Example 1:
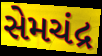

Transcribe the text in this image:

સેમચંદ્ર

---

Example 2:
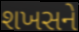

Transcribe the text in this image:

શખસને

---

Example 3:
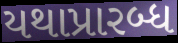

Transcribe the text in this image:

યથાપ્રારબ્ધ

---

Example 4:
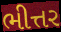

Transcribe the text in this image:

ભીત્તર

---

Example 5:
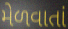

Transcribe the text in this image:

મેળવાતાં